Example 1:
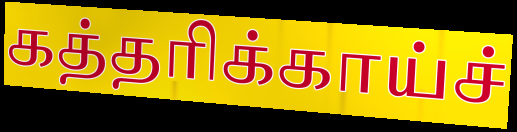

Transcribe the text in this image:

கத்தரிக்காய்ச்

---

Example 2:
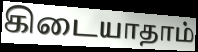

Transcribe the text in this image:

கிடையாதாம்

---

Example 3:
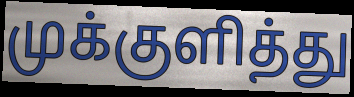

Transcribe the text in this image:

முக்குளித்து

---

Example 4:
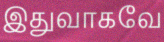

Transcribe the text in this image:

இதுவாகவே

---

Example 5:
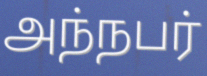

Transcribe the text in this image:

அந்நபர்